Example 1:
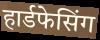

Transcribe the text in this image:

हार्डफेसिंग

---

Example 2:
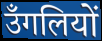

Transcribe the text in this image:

उँगलियों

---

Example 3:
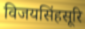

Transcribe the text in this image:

विजयसिंहसूरि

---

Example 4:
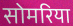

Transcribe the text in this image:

सोमरिया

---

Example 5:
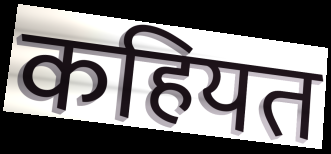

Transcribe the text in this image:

कहियत